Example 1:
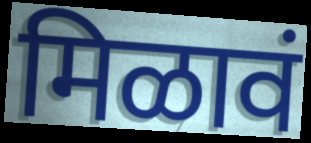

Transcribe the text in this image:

मिळावं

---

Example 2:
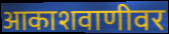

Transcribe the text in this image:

आकाशवाणीवर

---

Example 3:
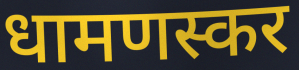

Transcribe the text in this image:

धामणस्कर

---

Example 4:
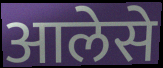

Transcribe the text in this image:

आलेसे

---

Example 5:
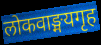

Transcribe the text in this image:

लोकवाङ्मयगृह